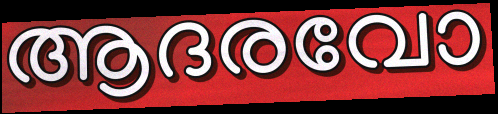
ആദരവോ